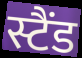
स्टैंड